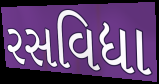
રસવિદ્યા